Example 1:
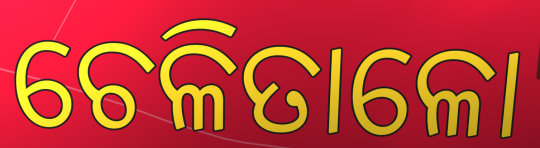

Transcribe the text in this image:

ଚେଳିତାଳୋ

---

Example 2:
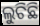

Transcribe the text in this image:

ଲୁଚିଛି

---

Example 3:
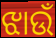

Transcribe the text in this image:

ଝାଉଁ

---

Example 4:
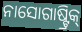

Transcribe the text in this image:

ନାସୋଗାଷ୍ଟ୍ରିକ୍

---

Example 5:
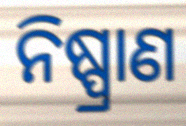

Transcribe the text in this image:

ନିଷ୍ପ୍ରାଣ